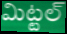
మిట్టల్